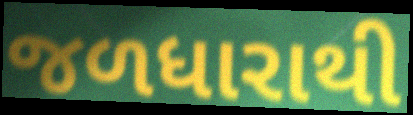
જળધારાથી